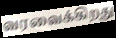
வரவைக்கிறது